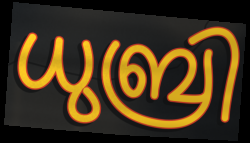
ധുബ്രി